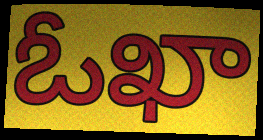
ఓఖా